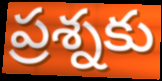
ప్రశ్నకు